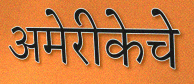
अमेरीकेचे